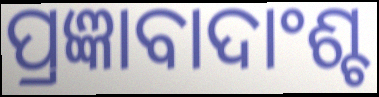
ପ୍ରଜ୍ଞାବାଦାଂଶ୍ଚ